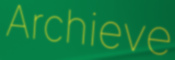
Archieve